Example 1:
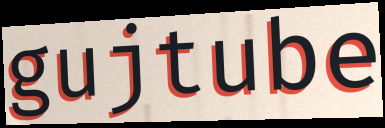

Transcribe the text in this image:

gujtube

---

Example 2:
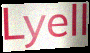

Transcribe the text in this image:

Lyell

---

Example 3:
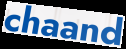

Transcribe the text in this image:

chaand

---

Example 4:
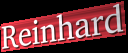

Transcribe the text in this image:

Reinhard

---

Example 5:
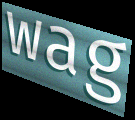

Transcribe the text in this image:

wag